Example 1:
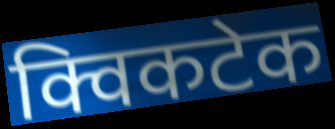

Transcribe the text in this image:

क्विकटेक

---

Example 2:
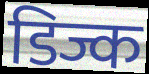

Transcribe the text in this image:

डिज्क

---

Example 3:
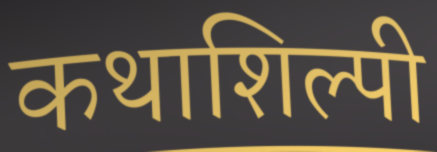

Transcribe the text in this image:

कथाशिल्पी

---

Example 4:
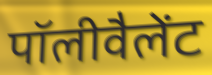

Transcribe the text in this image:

पॉलीवैलेंट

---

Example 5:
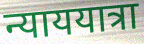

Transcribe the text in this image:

न्याययात्रा